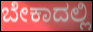
ಬೇಕಾದಲ್ಲಿ